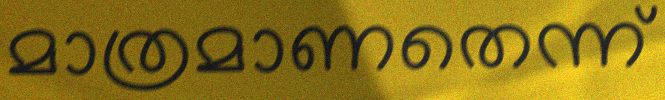
മാത്രമാണതെന്ന്